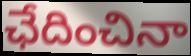
ఛేదించినా